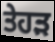
ਤੇਹੜ